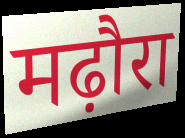
मढ़ौरा